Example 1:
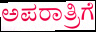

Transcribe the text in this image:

ಅಪರಾತ್ರಿಗೆ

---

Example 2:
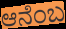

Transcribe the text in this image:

ಆನೆಂಬ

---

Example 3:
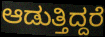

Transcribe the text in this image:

ಆಡುತ್ತಿದ್ದರೆ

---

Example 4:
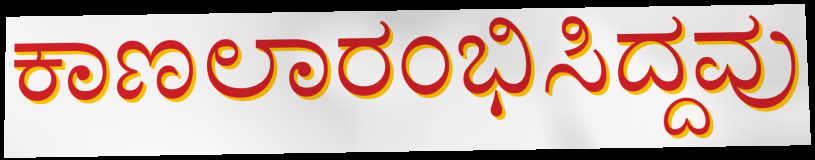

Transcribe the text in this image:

ಕಾಣಲಾರಂಭಿಸಿದ್ದವು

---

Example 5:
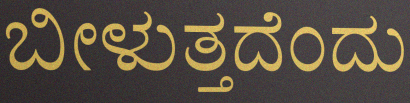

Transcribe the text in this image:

ಬೀಳುತ್ತದೆಂದು